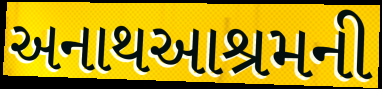
અનાથઆશ્રમની